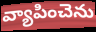
వ్యాపించెను